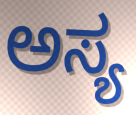
ಅಸ್ಯ